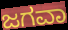
ಜಗವಾ